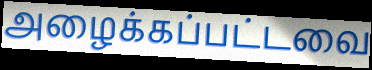
அழைக்கப்பட்டவை